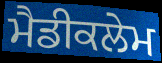
ਮੈਡੀਕਲੇਮ